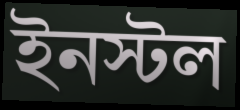
ইনস্টল